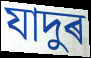
যাদুৰ